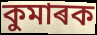
কুমাৰক